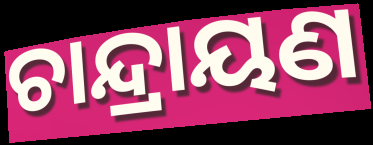
ଚାନ୍ଦ୍ରାୟଣ